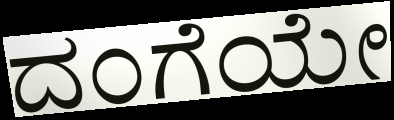
ದಂಗೆಯೇ